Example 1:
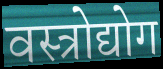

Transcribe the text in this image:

वस्त्रोद्योग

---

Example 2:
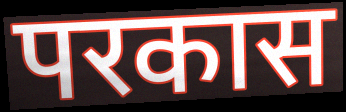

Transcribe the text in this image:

परकास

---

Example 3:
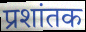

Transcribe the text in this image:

प्रशांतक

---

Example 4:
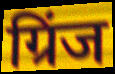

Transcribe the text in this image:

ग्रिंज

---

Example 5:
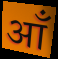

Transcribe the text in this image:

आँ